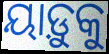
ୟାଡ଼ୁକୁ